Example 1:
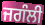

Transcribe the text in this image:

ਜਗੰਲੀ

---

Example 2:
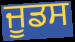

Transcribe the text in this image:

ਜੂਡਸ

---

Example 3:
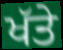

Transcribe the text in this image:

ਖੱਤੇ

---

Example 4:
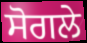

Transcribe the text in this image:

ਸੋਗਲੇ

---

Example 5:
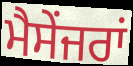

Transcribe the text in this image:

ਮੈਸੇਂਜਰਾਂ